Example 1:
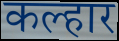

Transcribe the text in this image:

कल्हार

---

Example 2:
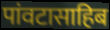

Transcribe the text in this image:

पांवटासाहिब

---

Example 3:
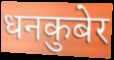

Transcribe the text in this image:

धनकुबेर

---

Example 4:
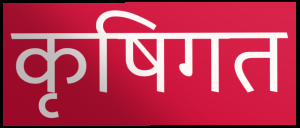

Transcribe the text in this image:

कृषिगत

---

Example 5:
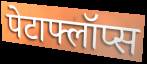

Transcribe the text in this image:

पेटाफ्लॉप्स